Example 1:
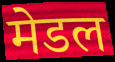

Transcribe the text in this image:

मेडल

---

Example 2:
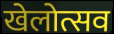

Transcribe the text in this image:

खेलोत्सव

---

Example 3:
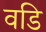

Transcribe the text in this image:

वडि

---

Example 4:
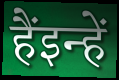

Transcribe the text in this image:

हैंइन्हें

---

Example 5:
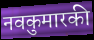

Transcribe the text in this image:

नवकुमारकी